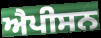
ਐਪੀਸਨ